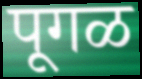
पूगळ